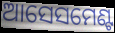
ଆସେସମେଣ୍ଟ